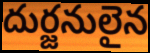
దుర్జనులైన